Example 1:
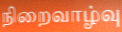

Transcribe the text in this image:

நிறைவாழ்வு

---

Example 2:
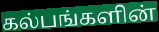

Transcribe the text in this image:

கல்பங்களின்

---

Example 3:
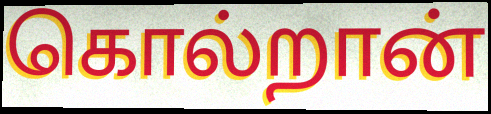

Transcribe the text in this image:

கொல்றான்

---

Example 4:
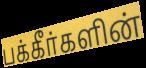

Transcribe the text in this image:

பக்கீர்களின்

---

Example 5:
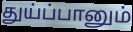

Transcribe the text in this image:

துய்ப்பானும்